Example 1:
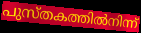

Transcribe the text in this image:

പുസ്തകത്തിൽനിന്ന്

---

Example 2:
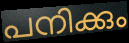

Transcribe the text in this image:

പനിക്കും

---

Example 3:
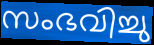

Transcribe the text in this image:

സംഭവിച്ചു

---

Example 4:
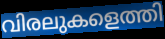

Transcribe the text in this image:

വിരലുകളെത്തി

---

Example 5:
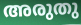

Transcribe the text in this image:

അരുതു